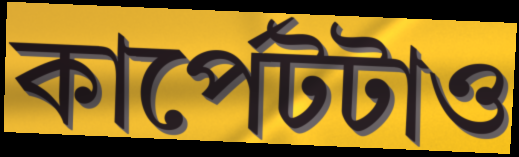
কার্পেটটাও